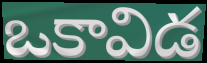
ఒకావిడ